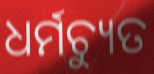
ଧର୍ମଚ୍ୟୁତ